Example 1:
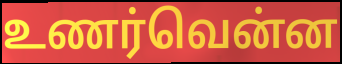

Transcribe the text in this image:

உணர்வென்ன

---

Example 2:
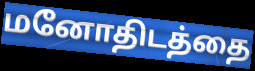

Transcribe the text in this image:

மனோதிடத்தை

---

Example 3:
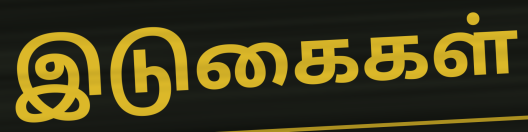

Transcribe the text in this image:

இடுகைகள்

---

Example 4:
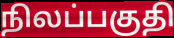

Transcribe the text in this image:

நிலப்பகுதி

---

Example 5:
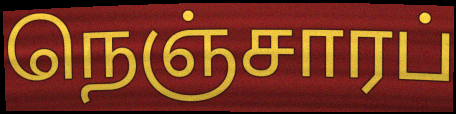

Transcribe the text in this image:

நெஞ்சாரப்